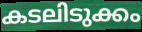
കടലിടുക്കം